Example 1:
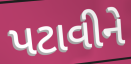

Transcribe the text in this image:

પટાવીને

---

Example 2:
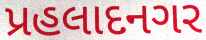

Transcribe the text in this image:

પ્રહલાદનગર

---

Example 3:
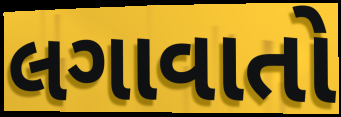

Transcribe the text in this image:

લગાવાતો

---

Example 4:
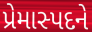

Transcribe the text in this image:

પ્રેમાસ્પદને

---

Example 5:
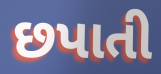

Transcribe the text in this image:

છપાતી